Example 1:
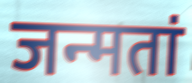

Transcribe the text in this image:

जन्मतां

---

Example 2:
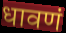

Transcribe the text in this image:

धावणं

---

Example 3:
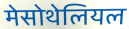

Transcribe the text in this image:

मेसोथेलियल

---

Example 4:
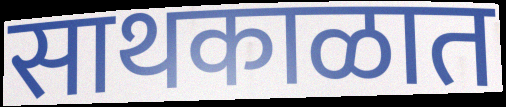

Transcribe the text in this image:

साथकाळात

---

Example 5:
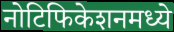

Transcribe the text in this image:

नोटिफिकेशनमध्ये